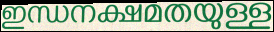
ഇന്ധനക്ഷമതയുള്ള